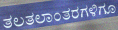
ತಲತಲಾಂತರಗಳಿಗೂ